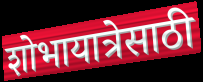
शोभायात्रेसाठी